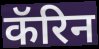
कॅरिन